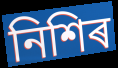
নিশিৰ